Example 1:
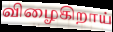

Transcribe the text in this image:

விழைகிறாய்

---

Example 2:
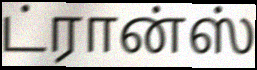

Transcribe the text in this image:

ட்ரான்ஸ்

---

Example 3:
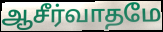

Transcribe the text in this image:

ஆசீர்வாதமே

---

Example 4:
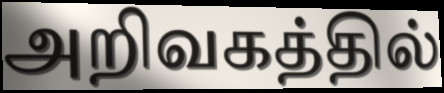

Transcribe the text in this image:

அறிவகத்தில்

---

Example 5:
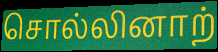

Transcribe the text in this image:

சொல்லினாற்